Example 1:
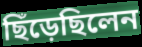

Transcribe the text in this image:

ছিঁড়েছিলেন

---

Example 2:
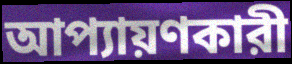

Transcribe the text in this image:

আপ্যায়ণকারী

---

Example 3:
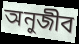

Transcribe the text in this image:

অনুজীব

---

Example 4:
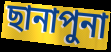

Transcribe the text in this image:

ছানাপুনা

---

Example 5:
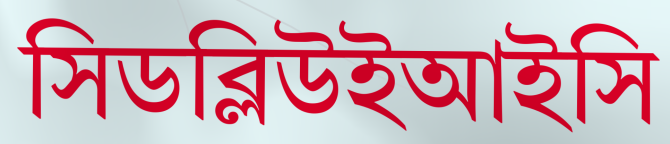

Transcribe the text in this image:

সিডব্লিউইআইসি